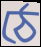
ঠে